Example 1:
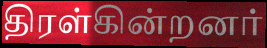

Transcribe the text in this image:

திரள்கின்றனர்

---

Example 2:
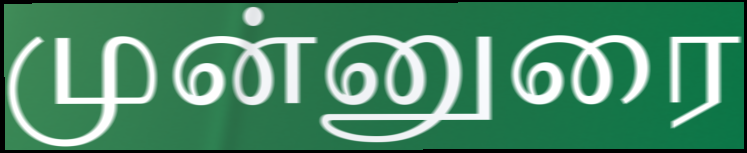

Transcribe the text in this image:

முன்னுரை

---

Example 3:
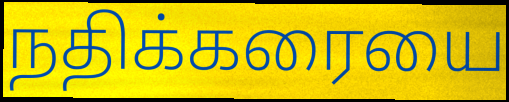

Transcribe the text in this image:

நதிக்கரையை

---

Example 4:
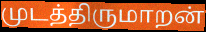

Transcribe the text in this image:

முடத்திருமாறன்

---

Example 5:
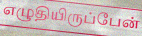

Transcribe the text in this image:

எழுதியிருப்பேன்